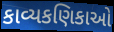
કાવ્યકણિકાઓ